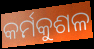
କର୍ମକୁଶଳ